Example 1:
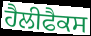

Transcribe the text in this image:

ਹੈਲੀਫੈਕਸ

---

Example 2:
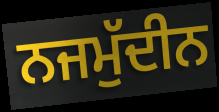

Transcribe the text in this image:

ਨਜਮੁੱਦੀਨ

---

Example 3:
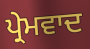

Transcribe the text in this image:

ਪ੍ਰੇਮਵਾਦ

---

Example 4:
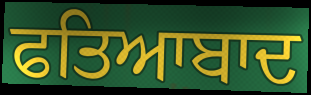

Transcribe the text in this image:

ਫਤਿਆਬਾਦ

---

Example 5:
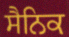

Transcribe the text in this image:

ਸੈਨਿਕ